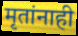
मृतांनाही